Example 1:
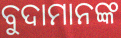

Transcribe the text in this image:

ବୁଦାମାନଙ୍କ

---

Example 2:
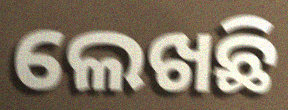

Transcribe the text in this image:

ଲେଖଛି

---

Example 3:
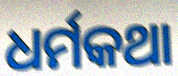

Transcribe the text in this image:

ଧର୍ମକଥା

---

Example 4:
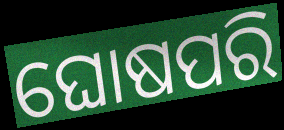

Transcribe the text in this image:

ଘୋଷପରି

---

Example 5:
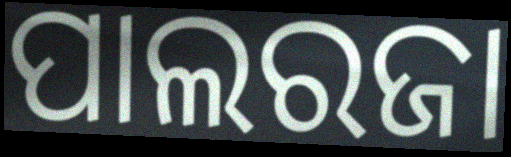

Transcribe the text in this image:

ପାଲରଜା